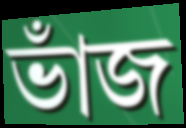
ভাঁজ